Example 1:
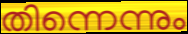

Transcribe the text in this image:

തിന്നെന്നും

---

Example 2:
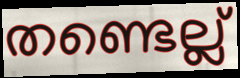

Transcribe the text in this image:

തണ്ടെല്ല്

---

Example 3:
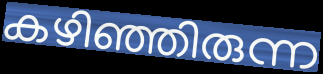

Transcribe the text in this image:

കഴിഞ്ഞിരുന്ന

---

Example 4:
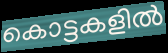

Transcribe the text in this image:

കൊട്ടകളിൽ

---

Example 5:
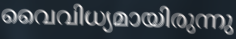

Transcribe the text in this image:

വൈവിധ്യമായിരുന്നു